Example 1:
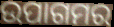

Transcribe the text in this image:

ଉପାଗମର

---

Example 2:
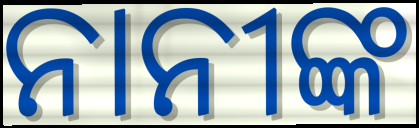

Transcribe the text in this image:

ନାନୀଙ୍କ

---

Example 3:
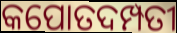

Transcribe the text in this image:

କପୋତଦମ୍ପତୀ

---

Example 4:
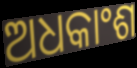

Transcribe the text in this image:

ଅଧକାଂଶ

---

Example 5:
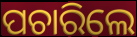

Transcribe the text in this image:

ପଚାରିଲେ